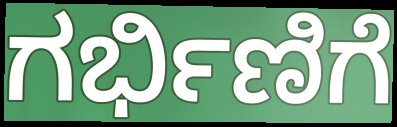
ಗರ್ಭಿಣಿಗೆ